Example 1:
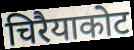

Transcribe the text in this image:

चिरैयाकोट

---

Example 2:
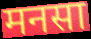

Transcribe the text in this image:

मनसा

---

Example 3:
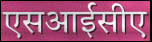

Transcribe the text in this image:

एसआईसीए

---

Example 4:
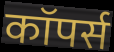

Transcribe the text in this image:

कॉपर्स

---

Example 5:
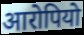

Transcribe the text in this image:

आरोपियो